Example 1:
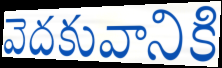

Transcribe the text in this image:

వెదకువానికి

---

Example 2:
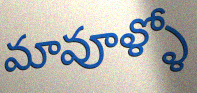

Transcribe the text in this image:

మావూళ్ళో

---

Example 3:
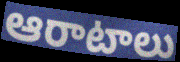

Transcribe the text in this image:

ఆరాటాలు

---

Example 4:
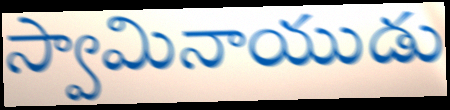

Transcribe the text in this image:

స్వామినాయుడు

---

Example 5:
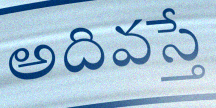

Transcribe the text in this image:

అదివస్తే